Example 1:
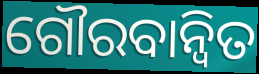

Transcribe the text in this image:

ଗୌରବାନ୍ୱିତ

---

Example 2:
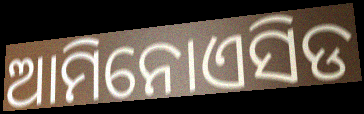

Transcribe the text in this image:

ଆମିନୋଏସିଡ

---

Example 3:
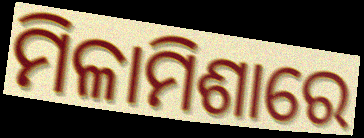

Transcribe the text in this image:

ମିଳାମିଶାରେ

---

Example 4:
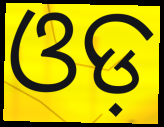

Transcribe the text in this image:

ଓଡ଼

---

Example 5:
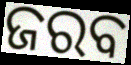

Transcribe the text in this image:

ଜରବ